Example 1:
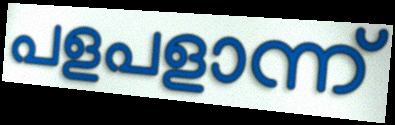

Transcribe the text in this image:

പളപളാന്ന്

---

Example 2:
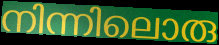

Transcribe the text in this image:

നിന്നിലൊരു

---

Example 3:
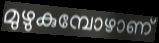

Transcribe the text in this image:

മുഴുകുമ്പോഴാണ്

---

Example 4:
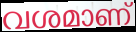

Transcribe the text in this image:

വശമാണ്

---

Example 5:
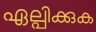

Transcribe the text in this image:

ഏല്പിക്കുക